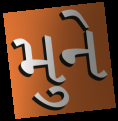
મુને